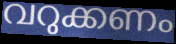
വറുക്കണം